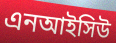
এনআইসিউ